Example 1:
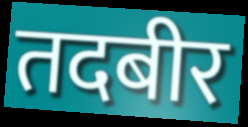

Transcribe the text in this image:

तदबीर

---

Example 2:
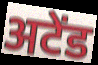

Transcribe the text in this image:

अटेंड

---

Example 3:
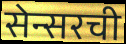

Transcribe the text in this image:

सेन्सरची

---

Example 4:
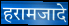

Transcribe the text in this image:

हरामजादे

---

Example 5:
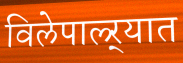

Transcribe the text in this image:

विलेपाल्र्यात